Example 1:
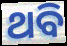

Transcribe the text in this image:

ଥବି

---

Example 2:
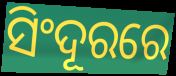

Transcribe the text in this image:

ସିଂଦୂରରେ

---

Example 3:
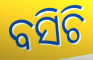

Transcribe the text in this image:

ବସିଚି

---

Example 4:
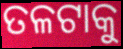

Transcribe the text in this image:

ତଳଟାକୁ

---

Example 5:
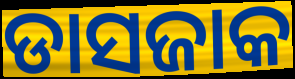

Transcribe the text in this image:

ଡାସଜାକ